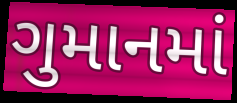
ગુમાનમાં